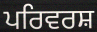
ਪਰਿਵਰਸ਼